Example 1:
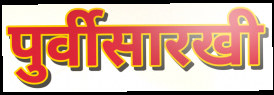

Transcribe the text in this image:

पुर्वीसारखी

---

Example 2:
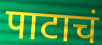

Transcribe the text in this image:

पाटाचं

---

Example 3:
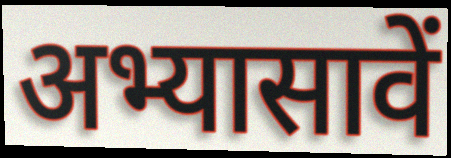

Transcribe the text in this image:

अभ्यासावें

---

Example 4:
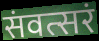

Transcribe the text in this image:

संवत्सरं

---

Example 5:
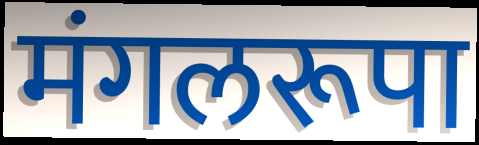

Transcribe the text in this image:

मंगलरूपा